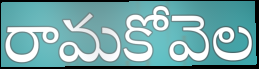
రామకోవెల